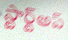
స్టార్ట్అప్